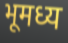
भूमध्य